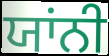
ਯਾਂਨੀ